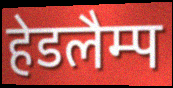
हेडलैम्प